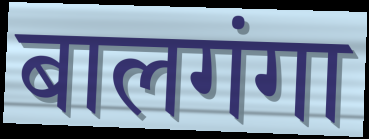
बालगंगा